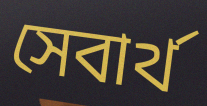
সেবার্থ